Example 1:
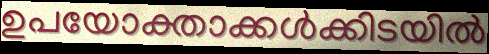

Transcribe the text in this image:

ഉപയോക്താക്കൾക്കിടയിൽ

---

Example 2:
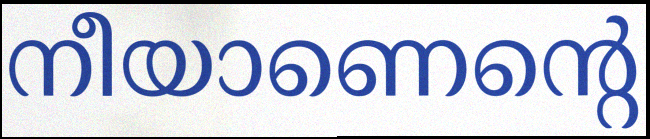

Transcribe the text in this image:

നീയാണെന്റെ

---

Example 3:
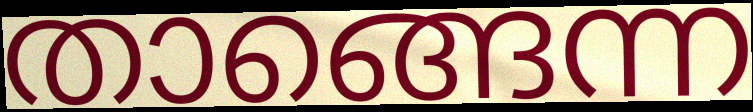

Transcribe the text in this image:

താങ്ങെന്ന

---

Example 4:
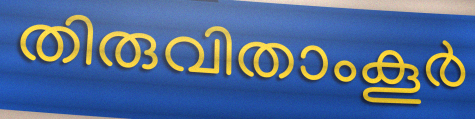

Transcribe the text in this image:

തിരുവിതാംകൂർ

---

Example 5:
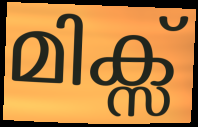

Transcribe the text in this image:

മിക്സ്